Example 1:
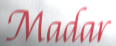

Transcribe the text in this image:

Madar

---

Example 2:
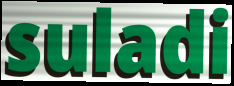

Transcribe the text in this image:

suladi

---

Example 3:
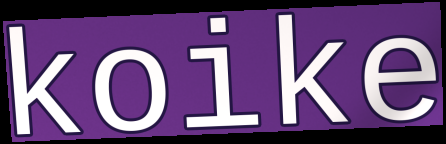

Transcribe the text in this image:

koike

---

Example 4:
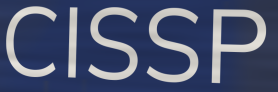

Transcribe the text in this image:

CISSP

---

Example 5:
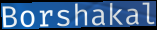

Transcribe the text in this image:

Borshakal